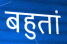
बहुतां